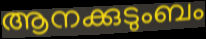
ആനക്കുടുംബം